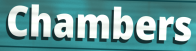
Chambers